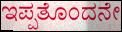
ಇಪ್ಪತೊಂದನೇ